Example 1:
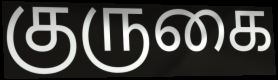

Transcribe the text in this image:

குருகை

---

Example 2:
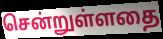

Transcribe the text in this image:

சென்றுள்ளதை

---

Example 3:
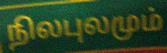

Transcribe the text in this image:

நிலபுலமும்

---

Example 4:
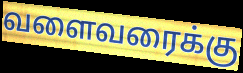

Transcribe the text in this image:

வளைவரைக்கு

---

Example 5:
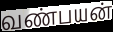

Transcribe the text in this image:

வண்பயன்